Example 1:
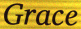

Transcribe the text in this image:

Grace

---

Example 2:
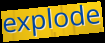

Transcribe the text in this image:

explode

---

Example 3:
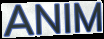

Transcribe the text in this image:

ANIM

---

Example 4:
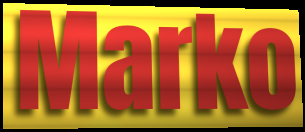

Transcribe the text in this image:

Marko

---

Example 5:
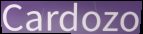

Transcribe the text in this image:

Cardozo